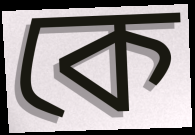
কে